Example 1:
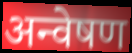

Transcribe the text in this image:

अन्वेषण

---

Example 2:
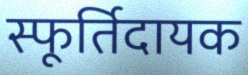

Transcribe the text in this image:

स्फूर्तिदायक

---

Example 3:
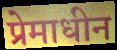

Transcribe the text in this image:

प्रेमाधीन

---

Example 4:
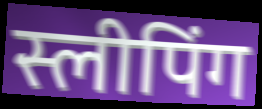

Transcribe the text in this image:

स्लीपिंग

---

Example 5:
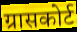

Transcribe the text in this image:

ग्रासकोर्ट